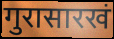
गुरासारखं